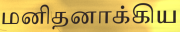
மனிதனாக்கிய